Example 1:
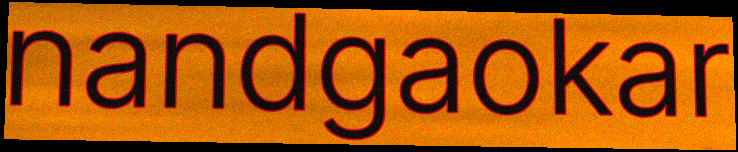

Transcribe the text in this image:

nandgaokar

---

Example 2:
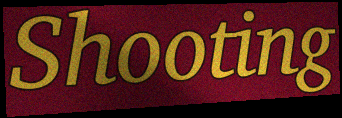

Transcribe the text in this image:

Shooting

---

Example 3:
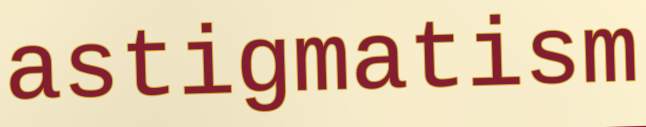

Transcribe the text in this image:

astigmatism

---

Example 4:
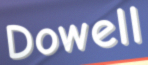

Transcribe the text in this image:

Dowell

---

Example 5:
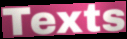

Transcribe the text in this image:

Texts